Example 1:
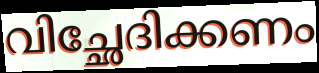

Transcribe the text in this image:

വിച്ഛേദിക്കണം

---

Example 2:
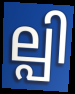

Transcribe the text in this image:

ല്പി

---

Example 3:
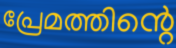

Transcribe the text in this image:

പ്രേമത്തിന്റെ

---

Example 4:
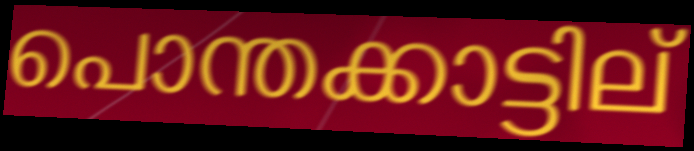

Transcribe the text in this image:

പൊന്തക്കാട്ടില്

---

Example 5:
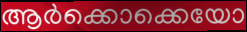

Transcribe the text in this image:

ആർക്കൊക്കെയോ